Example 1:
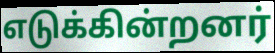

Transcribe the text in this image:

எடுக்கின்றனர்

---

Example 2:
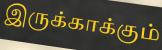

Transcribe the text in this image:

இருக்காக்கும்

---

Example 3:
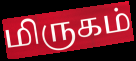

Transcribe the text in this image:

மிருகம்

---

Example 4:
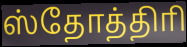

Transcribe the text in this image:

ஸ்தோத்திரி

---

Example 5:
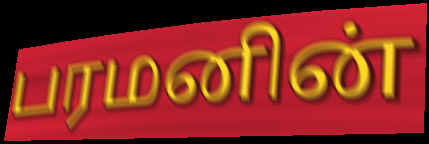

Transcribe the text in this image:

பரமனின்